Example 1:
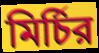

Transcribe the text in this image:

মির্চির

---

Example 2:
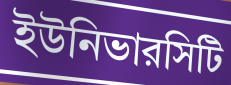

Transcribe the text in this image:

ইউনিভারসিটি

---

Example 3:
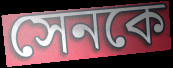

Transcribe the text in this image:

সেনকে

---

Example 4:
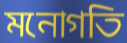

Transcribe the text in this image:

মনোগতি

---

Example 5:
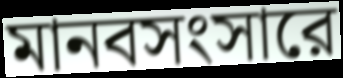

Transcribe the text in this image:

মানবসংসারে